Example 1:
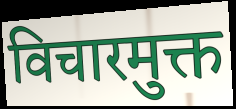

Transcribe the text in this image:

विचारमुक्त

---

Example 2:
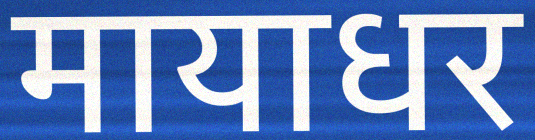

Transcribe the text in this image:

मायाधर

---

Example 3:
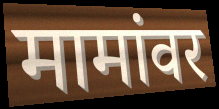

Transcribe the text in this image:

मामांवर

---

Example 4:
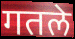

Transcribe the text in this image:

गतले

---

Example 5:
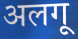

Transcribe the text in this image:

अलगू